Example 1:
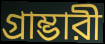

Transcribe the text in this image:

গ্রাম্ভারী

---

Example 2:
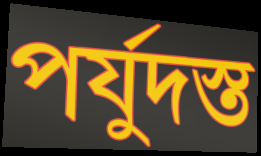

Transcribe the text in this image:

পর্যুদস্ত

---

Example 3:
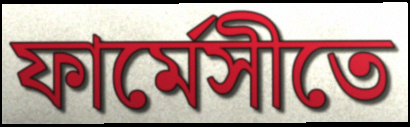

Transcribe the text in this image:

ফার্মেসীতে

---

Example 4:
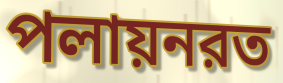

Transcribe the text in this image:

পলায়নরত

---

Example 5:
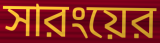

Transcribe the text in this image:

সারংয়ের